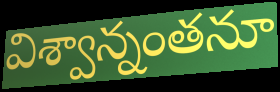
విశ్వాన్నంతనూ